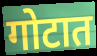
गोटात